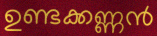
ഉണ്ടക്കണ്ണൻ